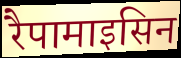
रैपामाइसिन